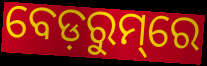
ବେଡ଼ରୁମ୍‌ରେ